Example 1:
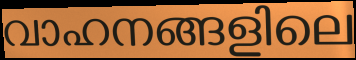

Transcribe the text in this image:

വാഹനങ്ങളിലെ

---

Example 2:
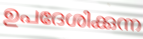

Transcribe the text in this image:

ഉപദേശിക്കുന്ന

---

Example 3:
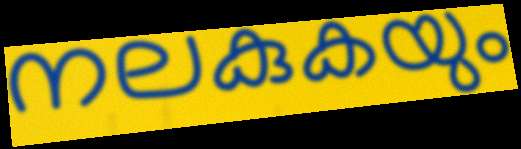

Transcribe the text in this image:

നലകുകയും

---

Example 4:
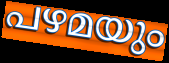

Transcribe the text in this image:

പഴമയും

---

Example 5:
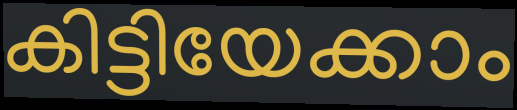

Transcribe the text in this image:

കിട്ടിയേക്കാം